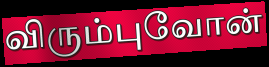
விரும்புவோன்